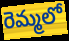
రెమ్మలో